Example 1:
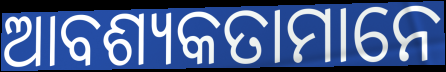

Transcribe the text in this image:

ଆବଶ୍ୟକତାମାନେ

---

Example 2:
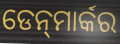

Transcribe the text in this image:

ଡେନ୍‍ମାର୍କର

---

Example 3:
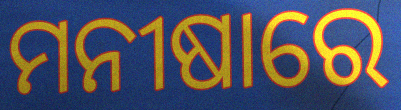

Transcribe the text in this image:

ମନୀଷାରେ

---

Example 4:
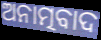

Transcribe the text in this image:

ଅନାତ୍ମବାଦ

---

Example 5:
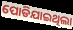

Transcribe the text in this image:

ପୋଡିଯାଇଥିଲା